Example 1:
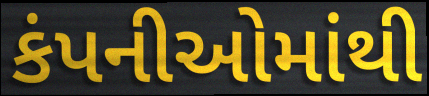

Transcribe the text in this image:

કંપનીઓમાંથી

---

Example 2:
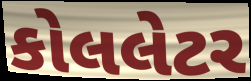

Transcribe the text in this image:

કોલલેટર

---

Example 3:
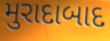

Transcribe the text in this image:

મુરાદાબાદ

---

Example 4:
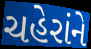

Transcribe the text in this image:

ચહેરાંને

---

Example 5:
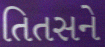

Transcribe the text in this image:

તિતસને